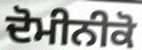
ਦੋਮੀਨੀਕੋ